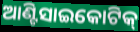
ଆଣ୍ଟିସାଇକୋଟିକ୍